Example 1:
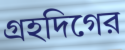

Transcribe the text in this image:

গ্রহদিগের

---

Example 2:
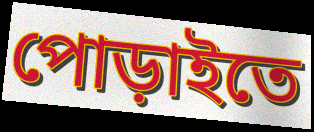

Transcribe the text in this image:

পোড়াইতে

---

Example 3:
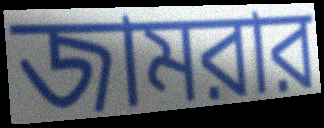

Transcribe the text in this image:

জামরার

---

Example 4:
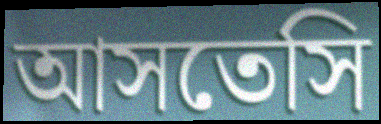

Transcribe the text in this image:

আসতেসি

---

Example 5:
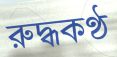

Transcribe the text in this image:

রুদ্ধকণ্ঠ